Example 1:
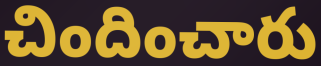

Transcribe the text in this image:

చిందించారు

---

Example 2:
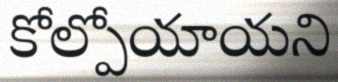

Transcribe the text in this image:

కోల్పోయాయని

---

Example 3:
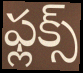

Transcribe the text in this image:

ఫ్లక్స్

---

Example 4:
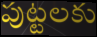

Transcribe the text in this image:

పుట్టలకు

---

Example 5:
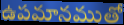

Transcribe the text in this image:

ఉపమానముతో